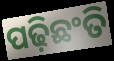
ପଢ଼ିଛଂତି